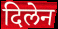
दिलेन